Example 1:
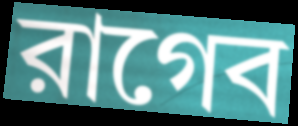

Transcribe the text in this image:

রাগেব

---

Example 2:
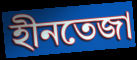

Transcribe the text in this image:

হীনতেজা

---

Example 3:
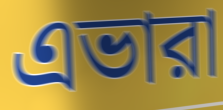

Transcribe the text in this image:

এভারা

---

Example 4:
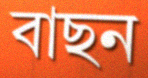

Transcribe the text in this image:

বাছন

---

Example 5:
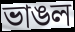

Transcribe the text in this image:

ভাঙল